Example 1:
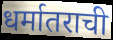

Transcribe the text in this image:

धर्मातराची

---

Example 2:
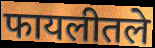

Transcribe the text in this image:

फायलीतले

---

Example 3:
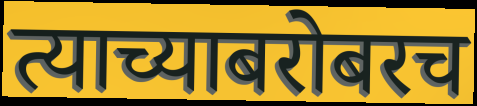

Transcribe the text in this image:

त्याच्याबरोबरच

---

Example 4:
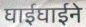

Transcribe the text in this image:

घाईघाईने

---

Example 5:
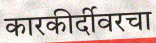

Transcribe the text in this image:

कारकीर्दीवरचा